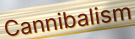
Cannibalism